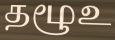
தழூஉ